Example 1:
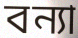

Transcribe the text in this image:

বন্যা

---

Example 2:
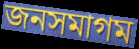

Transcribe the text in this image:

জনসমাগম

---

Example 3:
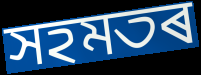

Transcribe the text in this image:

সহমতৰ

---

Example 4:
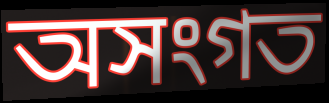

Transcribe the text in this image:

অসংগত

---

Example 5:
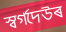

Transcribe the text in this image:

স্বৰ্গদেউৰ